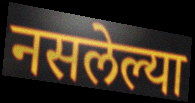
नसलेल्या